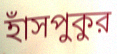
হাঁসপুকুর